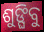
ଶୁଙ୍ଘିବୁ